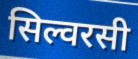
सिल्वरसी